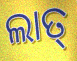
ଲାତ୍